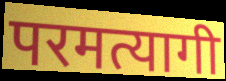
परमत्यागी